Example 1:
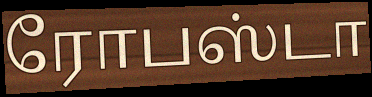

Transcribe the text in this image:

ரோபஸ்டா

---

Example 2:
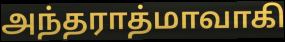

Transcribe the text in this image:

அந்தராத்மாவாகி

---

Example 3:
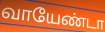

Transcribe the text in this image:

வாயேண்டா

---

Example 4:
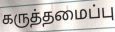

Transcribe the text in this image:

கருத்தமைப்பு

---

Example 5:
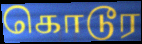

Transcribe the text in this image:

கொடூர